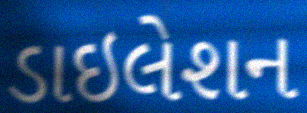
ડાઇલેશન